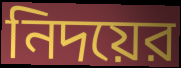
নিদয়ের